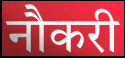
नौकरी